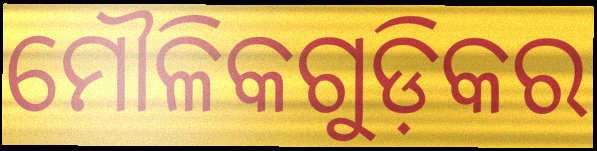
ମୌଳିକଗୁଡ଼ିକର